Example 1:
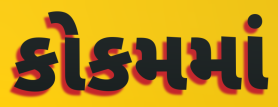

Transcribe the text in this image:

કોકમમાં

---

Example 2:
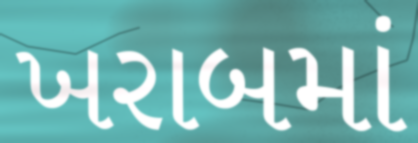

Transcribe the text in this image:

ખરાબમાં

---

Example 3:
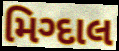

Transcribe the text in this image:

મિગ્દાલ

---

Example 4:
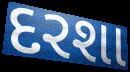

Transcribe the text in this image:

દરશા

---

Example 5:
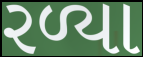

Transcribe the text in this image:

રળ્યા